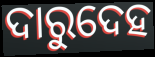
ଦାରୁଦେହ